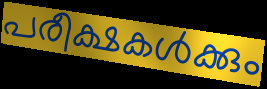
പരീക്ഷകൾക്കും